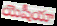
యెషీయా